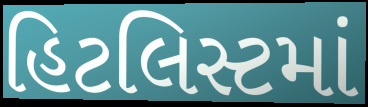
હિટલિસ્ટમાં